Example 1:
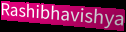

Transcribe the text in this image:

Rashibhavishya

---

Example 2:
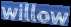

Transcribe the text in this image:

willow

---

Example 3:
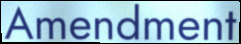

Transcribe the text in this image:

Amendment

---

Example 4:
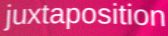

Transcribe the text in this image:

juxtaposition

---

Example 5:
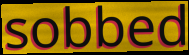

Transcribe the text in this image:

sobbed